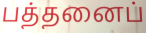
பத்தனைப்